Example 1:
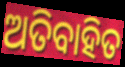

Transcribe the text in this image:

ଅତିବାହିତ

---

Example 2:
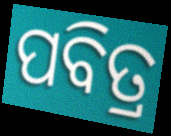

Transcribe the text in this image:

ପବିତ୍ର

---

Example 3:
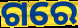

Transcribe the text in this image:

ଗରେ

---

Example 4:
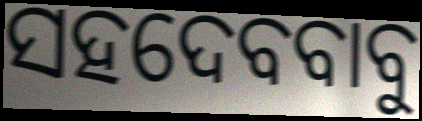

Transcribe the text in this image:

ସହଦେବବାବୁ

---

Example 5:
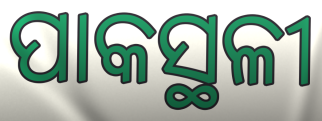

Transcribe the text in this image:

ପାକସ୍ଥଳୀ